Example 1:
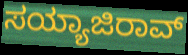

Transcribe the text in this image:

ಸಯ್ಯಾಜಿರಾವ್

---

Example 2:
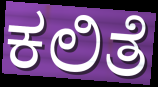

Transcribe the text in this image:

ಕಲಿತೆ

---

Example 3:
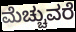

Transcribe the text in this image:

ಮೆಚ್ಚುವರೆ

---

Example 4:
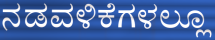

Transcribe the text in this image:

ನಡವಳಿಕೆಗಳಲ್ಲೂ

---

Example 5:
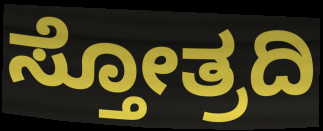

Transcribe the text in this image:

ಸ್ತೋತ್ರದಿ